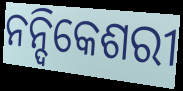
ନନ୍ଦିକେଶରୀ